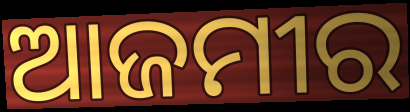
ଆଜମୀର